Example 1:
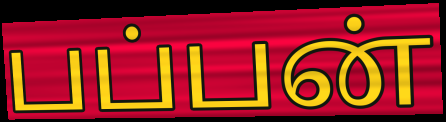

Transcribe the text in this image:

பப்பன்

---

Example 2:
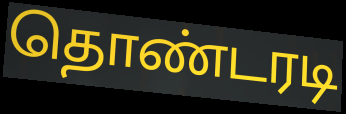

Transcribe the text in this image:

தொண்டரடி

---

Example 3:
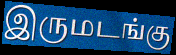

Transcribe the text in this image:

இருமடங்கு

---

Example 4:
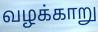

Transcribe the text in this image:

வழக்காறு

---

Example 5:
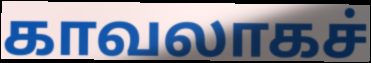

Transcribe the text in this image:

காவலாகச்